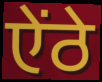
ऐंठे